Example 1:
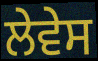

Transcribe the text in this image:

ਲੇਵੇਸ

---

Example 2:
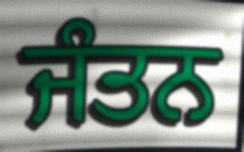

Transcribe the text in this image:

ਜੰਤਨ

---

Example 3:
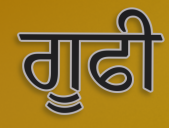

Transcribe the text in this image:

ਗੂਫੀ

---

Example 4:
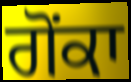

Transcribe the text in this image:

ਗੋਂਕਾ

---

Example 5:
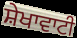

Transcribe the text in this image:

ਸ਼ੇਖਾਵਾਟੀ